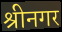
श्रीनगर